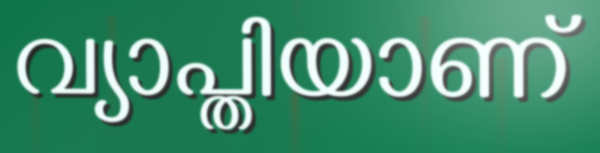
വ്യാപ്തിയാണ്